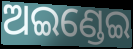
ଅଇଣ୍ଡେଇ